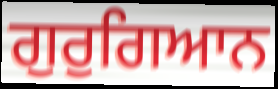
ਗੁਰੁਗਿਆਨ